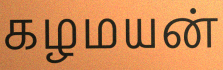
கழமயன்